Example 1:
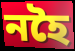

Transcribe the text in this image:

নহৈ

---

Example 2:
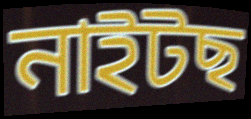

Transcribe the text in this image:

নাইটছ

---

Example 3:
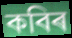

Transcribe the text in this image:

কবিৰ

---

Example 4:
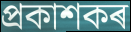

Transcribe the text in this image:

প্ৰকাশকৰ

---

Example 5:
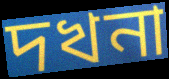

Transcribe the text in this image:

দখনা